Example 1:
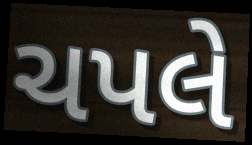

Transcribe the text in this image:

ચપલે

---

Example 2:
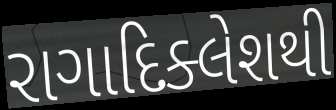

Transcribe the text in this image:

રાગાદિક્લેશથી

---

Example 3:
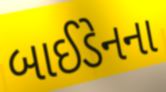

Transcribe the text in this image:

બાઈડેનના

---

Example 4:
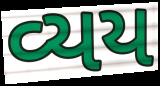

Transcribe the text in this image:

વ્યય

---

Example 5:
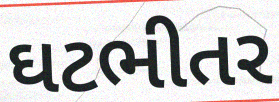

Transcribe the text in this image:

ઘટભીતર